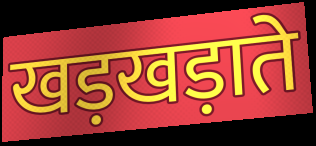
खड़खड़ाते